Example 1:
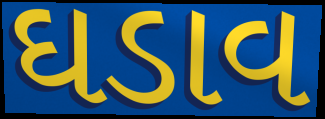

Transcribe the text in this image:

ઘડાવ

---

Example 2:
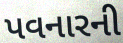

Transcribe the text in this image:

પવનારની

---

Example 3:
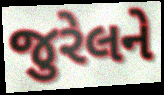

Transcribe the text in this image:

જુરેલને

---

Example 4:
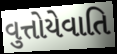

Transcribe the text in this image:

વુત્તોયેવાતિ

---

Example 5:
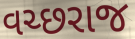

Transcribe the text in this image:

વચ્છરાજ